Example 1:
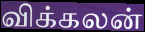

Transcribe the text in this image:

விக்கலன்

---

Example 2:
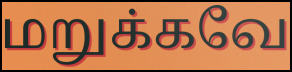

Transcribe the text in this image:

மறுக்கவே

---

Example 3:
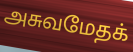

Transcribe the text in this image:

அசுவமேதக்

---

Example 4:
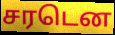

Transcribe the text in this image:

சரடென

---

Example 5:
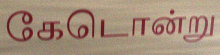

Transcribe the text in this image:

கேடொன்று